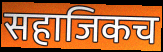
सहाजिकच